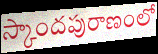
స్కాందపురాణంలో